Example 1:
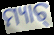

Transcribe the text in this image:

ମ୍ୟାଚ୍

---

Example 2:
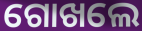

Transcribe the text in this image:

ଗୋଖଲେ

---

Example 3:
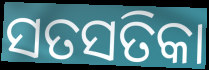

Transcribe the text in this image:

ସତସତିକା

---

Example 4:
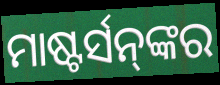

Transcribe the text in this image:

ମାଷ୍ଟର୍ସନ୍‌ଙ୍କର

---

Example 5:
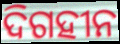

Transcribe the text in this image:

ଦିଗହୀନ